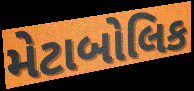
મેટાબોલિક